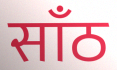
साँठ